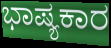
ಭಾಷ್ಯಕಾರ